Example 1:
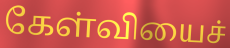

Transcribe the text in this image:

கேள்வியைச்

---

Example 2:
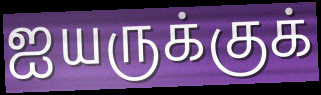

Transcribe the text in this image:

ஐயருக்குக்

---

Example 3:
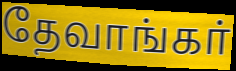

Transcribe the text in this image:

தேவாங்கர்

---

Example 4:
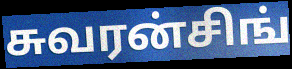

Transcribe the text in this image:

சுவரன்சிங்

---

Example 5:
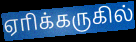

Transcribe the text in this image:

ஏரிக்கருகில்